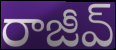
రాజీవ్